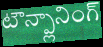
టౌన్ప్లానింగ్